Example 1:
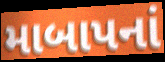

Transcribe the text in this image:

માબાપનાં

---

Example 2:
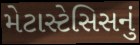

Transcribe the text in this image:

મેટાસ્ટેસિસનું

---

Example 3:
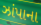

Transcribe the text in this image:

ઝાંપાના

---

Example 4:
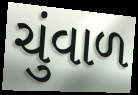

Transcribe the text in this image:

ચુંવાળ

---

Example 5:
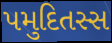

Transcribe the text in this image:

પમુદિતસ્સ